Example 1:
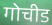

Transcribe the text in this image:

गोचीड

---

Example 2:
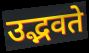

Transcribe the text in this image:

उद्भवते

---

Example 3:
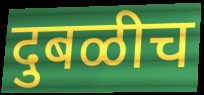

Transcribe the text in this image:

दुबळीच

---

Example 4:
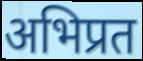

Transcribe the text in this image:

अभिप्रत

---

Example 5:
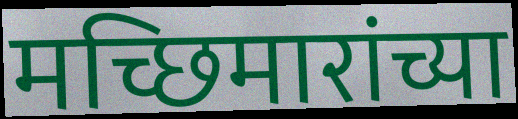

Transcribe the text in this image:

मच्छिमारांच्या